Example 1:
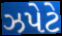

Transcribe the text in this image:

ઝપેટે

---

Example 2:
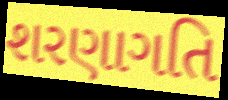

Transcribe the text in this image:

શરણાગતિ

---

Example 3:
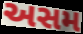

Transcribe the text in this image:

અસમ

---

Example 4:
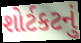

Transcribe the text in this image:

શોર્ટકટનું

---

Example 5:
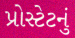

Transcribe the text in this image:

પ્રોસ્ટેટનું